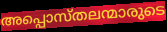
അപ്പൊസ്തലന്മാരുടെ